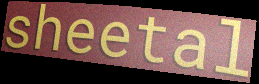
sheetal